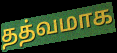
தத்வமாக